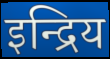
इन्द्रिय